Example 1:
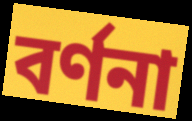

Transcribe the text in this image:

বৰ্ণনা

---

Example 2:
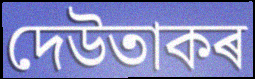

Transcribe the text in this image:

দেউতাকৰ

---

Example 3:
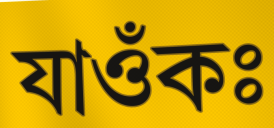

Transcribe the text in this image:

যাওঁকঃ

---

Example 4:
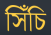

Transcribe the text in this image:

সিঁচি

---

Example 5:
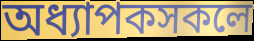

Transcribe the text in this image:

অধ্যাপকসকলে